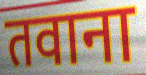
तवाना